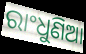
ରାଂଧୁଣିଆ